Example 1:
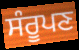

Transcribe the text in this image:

ਸੰਰੂਪਣ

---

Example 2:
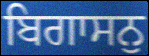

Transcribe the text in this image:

ਬਿਗਾਸਨੁ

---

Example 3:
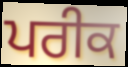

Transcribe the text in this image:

ਪਰੀਕ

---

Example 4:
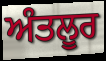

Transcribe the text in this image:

ਅੰਤਲੂਰ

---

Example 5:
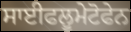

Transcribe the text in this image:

ਸਾਈਫਲੂਮੇਟੋਫੇਨ